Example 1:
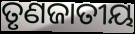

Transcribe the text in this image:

ତୃଣଜାତୀୟ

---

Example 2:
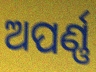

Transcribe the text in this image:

ଅପର୍ଣ୍ଣ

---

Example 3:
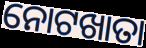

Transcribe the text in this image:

ନୋଟଖାତା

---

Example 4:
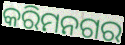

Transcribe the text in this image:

କରିମନଗର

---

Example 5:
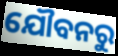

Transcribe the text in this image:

ଯୌବନରୁ